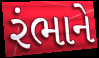
રંભાને